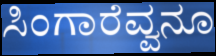
ಸಿಂಗಾರೆವ್ವನೂ